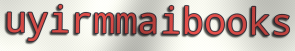
uyirmmaibooks